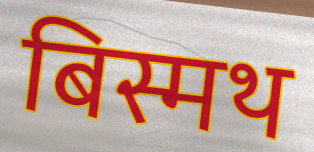
बिस्मथ